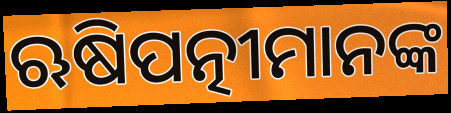
ଋଷିପତ୍ନୀମାନଙ୍କ